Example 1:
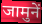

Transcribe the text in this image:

जामुनें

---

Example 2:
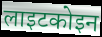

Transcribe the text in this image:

लाइटकोइन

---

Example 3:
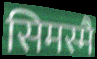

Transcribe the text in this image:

सिमस्मै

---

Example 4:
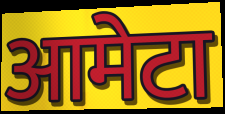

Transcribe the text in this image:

आमेटा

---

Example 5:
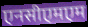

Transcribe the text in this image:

एनसीएमएम